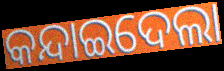
କନ୍ଦାଇଦେଲା